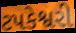
ટપકેશ્વરી